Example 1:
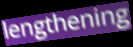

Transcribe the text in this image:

lengthening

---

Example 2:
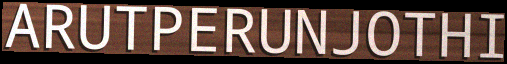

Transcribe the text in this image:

ARUTPERUNJOTHI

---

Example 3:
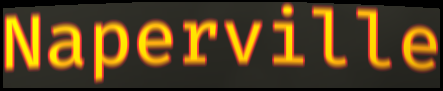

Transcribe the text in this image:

Naperville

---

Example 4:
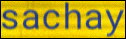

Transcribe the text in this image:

sachay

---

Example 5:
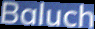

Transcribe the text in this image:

Baluch